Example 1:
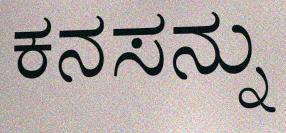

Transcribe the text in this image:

ಕನಸನ್ನು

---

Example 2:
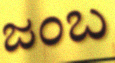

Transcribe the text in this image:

ಜಂಬ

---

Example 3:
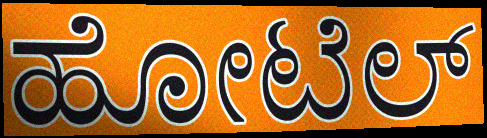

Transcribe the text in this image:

ಹೋಟೆಲ್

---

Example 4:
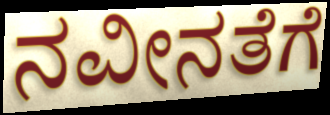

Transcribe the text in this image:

ನವೀನತೆಗೆ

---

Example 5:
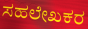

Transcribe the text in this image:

ಸಹಲೇಖಕರ